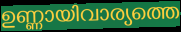
ഉണ്ണായിവാര്യത്തെ